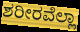
ಶರೀರವೆಲ್ಲಾ